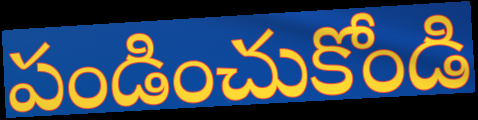
పండించుకోండి